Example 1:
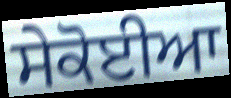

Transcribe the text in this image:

ਸੇਕੋਈਆ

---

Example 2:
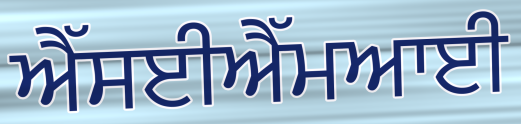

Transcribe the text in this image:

ਐੱਸਈਐੱਮਆਈ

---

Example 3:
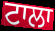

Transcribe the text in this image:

ਟਾਲਾ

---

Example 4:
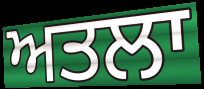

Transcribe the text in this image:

ਅਤਲਾ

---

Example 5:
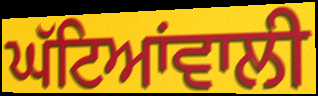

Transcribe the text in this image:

ਘੱਟਿਆਂਵਾਲੀ